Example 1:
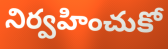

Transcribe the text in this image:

నిర్వహించుకో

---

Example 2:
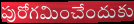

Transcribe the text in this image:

పురోగమించేందుకు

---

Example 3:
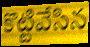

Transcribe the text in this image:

కొట్టివేసిన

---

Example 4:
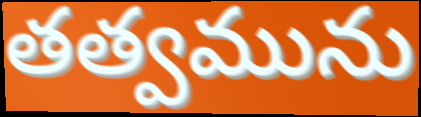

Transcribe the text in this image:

తత్వమును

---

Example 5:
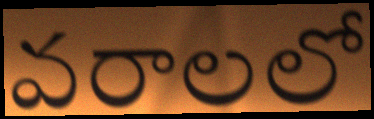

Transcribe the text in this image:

వరాలలో